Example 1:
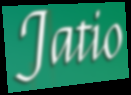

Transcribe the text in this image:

Jatio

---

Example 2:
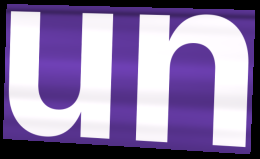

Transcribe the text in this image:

un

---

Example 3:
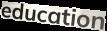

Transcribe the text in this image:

education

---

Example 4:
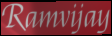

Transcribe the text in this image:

Ramvijay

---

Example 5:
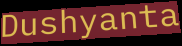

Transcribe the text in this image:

Dushyanta